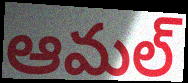
ఆమల్